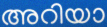
അറിയാ